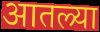
आतल्या